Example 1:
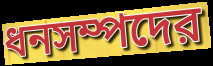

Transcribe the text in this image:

ধনসম্পদের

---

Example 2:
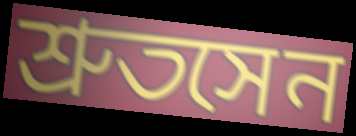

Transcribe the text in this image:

শ্রুতসেন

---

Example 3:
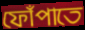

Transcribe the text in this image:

ফোঁপাতে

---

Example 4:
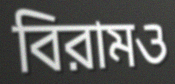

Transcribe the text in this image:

বিরামও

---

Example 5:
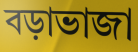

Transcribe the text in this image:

বড়াভাজা